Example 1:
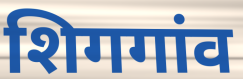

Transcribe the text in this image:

शिगगांव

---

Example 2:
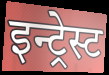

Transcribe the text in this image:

इन्ट्रेस्ट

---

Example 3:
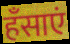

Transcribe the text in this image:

हँसाएं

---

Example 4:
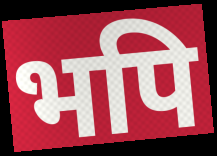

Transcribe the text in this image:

भपि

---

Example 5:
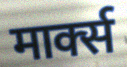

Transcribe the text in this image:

मार्क्‍स